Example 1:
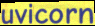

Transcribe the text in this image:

uvicorn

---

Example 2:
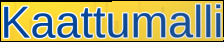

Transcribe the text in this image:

Kaattumalli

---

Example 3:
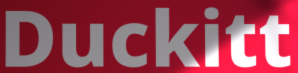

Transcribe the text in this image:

Duckitt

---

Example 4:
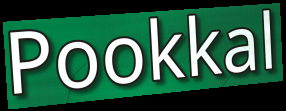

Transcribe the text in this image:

Pookkal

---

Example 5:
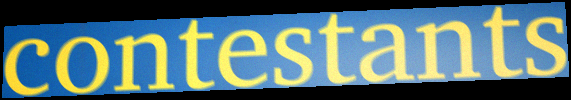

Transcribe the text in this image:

contestants